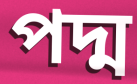
পদ্ম